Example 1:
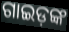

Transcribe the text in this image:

ଗାଇଡ଼ଙ୍କ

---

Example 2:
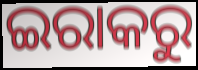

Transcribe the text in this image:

ଇରାକରୁ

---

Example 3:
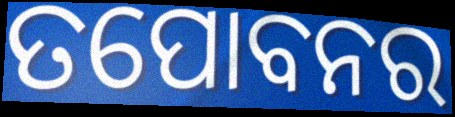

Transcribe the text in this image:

ତପୋବନର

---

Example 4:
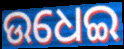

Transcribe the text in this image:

ଉଧେଇ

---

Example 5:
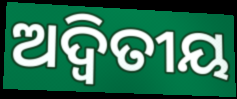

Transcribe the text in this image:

ଅଦ୍ୱିତୀୟ